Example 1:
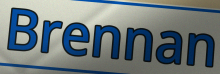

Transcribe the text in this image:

Brennan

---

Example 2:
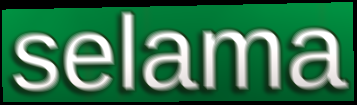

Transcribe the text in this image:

selama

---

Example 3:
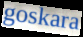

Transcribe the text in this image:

goskara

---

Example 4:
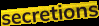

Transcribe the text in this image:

secretions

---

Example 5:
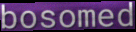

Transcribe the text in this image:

bosomed